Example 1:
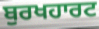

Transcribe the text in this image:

ਬੁਰਖਹਾਰਟ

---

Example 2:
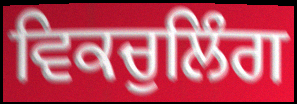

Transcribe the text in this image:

ਵਿਕਚੁਲਿੰਗ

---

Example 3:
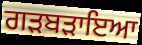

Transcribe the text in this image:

ਗੜਬੜਾਇਆ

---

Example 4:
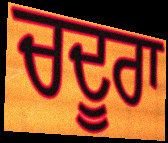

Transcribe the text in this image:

ਚਦੂਰਾ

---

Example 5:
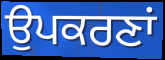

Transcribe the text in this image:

ਉਪਕਰਣਾਂ